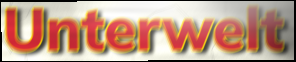
Unterwelt